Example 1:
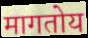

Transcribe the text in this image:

मागतोय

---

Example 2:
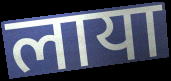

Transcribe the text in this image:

लाया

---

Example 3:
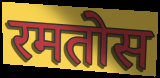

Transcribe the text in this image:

रमतोस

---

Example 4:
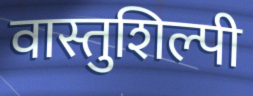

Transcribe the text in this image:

वास्तुशिल्पी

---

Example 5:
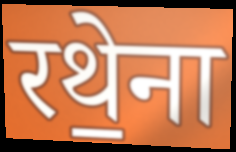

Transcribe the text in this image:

रथे॒ना